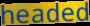
headed